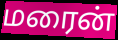
மரைன்